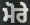
ਮੋਰੇ